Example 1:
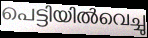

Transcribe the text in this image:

പെട്ടിയിൽവെച്ചു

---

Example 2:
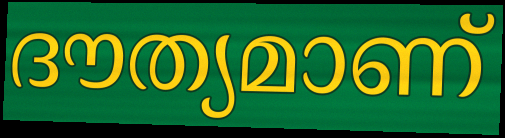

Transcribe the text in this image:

ദൗത്യമാണ്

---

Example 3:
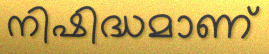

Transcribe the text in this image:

നിഷിദ്ധമാണ്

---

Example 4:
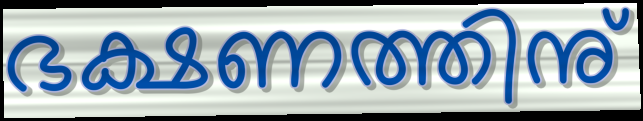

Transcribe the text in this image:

ഭക്ഷണത്തിനു്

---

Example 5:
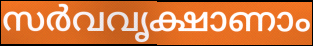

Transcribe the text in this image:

സർവവൃക്ഷാണാം